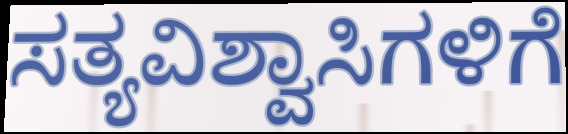
ಸತ್ಯವಿಶ್ವಾಸಿಗಳಿಗೆ